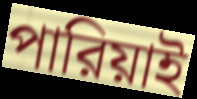
পারিয়াই